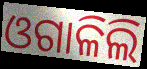
ଓଗାଳିଲି